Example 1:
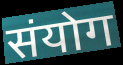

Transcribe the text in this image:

संयोग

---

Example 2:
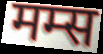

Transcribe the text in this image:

मम्स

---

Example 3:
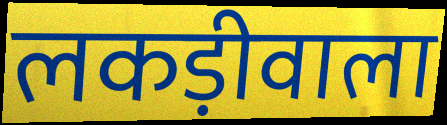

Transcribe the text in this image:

लकड़ीवाला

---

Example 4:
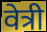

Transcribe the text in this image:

वेत्री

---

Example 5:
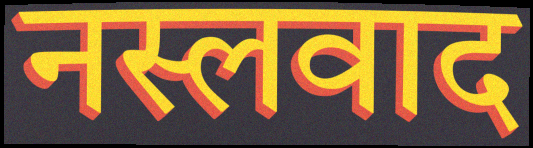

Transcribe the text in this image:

नस्लवाद